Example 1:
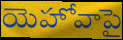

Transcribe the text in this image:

యెహోవాపై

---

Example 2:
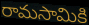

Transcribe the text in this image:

రామసామికి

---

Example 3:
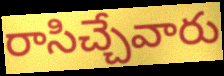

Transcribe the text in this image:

రాసిచ్చేవారు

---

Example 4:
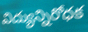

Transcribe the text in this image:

విద్యున్నిరోధక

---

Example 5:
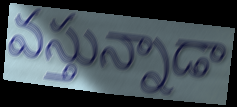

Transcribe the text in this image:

వస్తున్నాడా